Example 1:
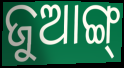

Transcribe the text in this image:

ଜୁଆଙ୍ଗ୍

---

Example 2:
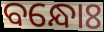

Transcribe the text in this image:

ବନ୍ଧୋଃ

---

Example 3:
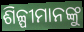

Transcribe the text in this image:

ଶିଳ୍ପୀମାନଙ୍କୁ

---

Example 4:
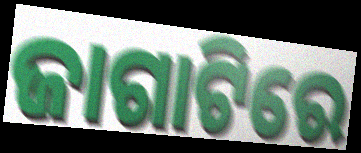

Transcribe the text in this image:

ଜାଗାଟିରେ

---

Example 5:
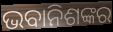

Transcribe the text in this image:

ଭବାନିଶଙ୍କର